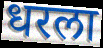
धरला